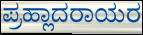
ಪ್ರಹ್ಲಾದರಾಯರ